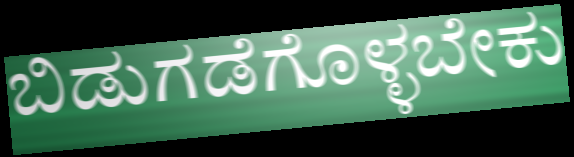
ಬಿಡುಗಡೆಗೊಳ್ಳಬೇಕು